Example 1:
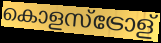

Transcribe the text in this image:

കൊളസ്ട്രോള്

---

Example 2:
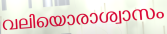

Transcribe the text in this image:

വലിയൊരാശ്വാസം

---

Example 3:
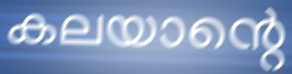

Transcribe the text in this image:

കലയാന്റെ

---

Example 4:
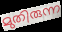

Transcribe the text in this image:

മുതിരുന്ന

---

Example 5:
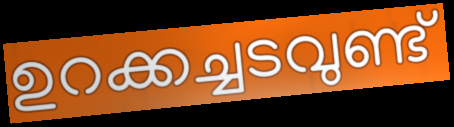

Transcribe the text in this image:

ഉറക്കച്ചടവുണ്ട്